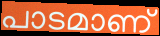
പാടമാണ്